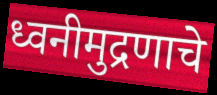
ध्वनीमुद्रणाचे